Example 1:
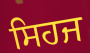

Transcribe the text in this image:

ਸਿਹਜ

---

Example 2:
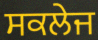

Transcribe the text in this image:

ਸਕਲੇਜ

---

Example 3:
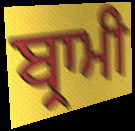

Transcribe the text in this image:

ਬ੍ਰਾਮੀ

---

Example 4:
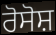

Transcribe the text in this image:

ਰੋਸੋਸ਼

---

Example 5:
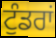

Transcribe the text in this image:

ਟੁੰਡਰਾਂ